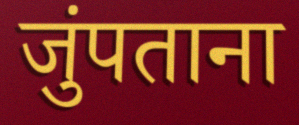
जुंपताना